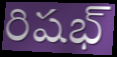
రిషభ్